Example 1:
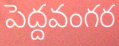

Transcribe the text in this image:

పెద్దవంగర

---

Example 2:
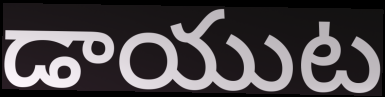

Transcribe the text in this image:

డాయుట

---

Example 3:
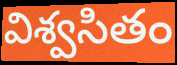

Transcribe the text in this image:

విశ్వసితం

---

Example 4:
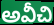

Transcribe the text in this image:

అవీచి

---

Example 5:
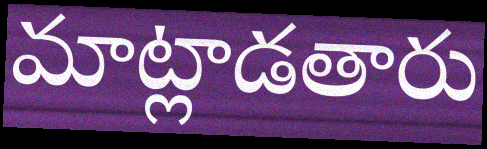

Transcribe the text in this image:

మాట్లాడతారు